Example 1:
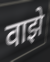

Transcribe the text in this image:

वाझे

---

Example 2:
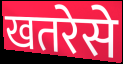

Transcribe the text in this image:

खतरेसे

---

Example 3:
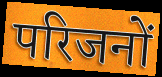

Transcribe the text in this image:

परिजनों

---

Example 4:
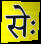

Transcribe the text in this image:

सेः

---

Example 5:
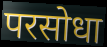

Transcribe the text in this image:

परसोधा